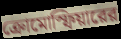
ক্রোমোস্ফিয়ারের